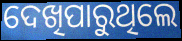
ଦେଖିପାରୁଥିଲେ